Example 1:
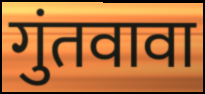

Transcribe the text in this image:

गुंतवावा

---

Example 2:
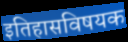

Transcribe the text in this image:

इतिहासविषयक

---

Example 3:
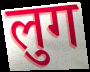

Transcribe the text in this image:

लुग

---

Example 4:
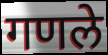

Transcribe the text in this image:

गणले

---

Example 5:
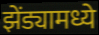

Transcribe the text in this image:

झेंड्यामध्ये